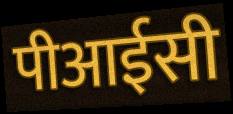
पीआईसी